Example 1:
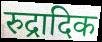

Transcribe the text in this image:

रुद्रादिक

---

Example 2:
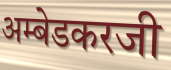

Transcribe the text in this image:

अम्बेडकरजी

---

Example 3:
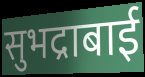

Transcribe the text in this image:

सुभद्राबाई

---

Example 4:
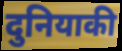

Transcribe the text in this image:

दुनियाकी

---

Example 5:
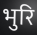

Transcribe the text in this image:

भुरि